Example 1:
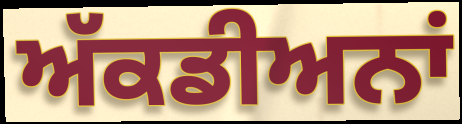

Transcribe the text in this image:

ਅੱਕਡੀਅਨਾਂ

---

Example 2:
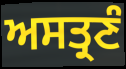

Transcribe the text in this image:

ਅਸਤ੍ਰਣੰ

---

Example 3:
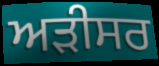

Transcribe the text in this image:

ਅੜੀਸਰ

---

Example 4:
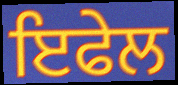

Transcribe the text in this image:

ਇਫੇਲ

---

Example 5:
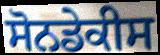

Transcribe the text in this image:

ਸੋਨਡੇਕੀਸ